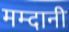
मम्दानी